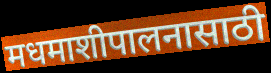
मधमाशीपालनासाठी